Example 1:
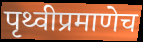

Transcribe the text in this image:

पृथ्वीप्रमाणेच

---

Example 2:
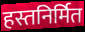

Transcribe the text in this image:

हस्तनिर्मित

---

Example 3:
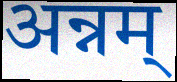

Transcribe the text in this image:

अन्नम्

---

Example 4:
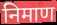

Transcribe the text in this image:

निमाण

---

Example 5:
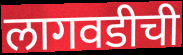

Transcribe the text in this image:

लागवडीची